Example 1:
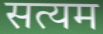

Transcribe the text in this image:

सत्यम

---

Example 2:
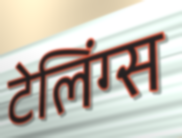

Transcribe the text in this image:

टेलिंग्स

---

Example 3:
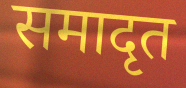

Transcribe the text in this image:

समादृत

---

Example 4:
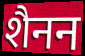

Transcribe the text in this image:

शैनन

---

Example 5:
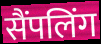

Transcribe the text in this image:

सैंपलिंग